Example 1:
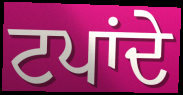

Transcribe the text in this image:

ਟਪਾਂਦੇ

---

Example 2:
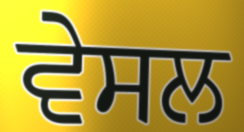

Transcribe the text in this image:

ਵੇਸਲ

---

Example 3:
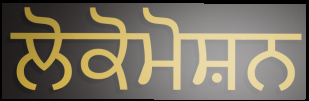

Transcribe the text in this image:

ਲੋਕੋਮੋਸ਼ਨ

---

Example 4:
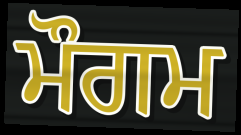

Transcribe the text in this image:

ਮੌਗਮ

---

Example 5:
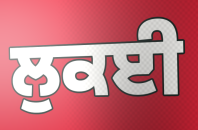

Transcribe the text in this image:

ਲੁਕਈ